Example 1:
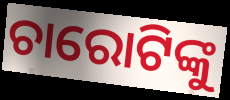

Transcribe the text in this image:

ଚାରୋଟିଙ୍କୁ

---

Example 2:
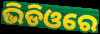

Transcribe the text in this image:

ଭିଡିଓରେ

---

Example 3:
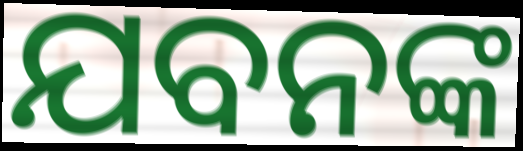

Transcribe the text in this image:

ଯବନଙ୍କ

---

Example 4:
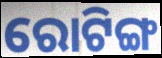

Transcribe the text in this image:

ରୋଟିଙ୍ଗ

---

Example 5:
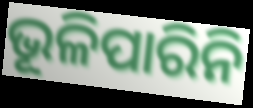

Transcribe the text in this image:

ଭୂଳିପାରିନି